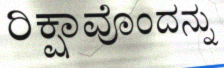
ರಿಕ್ಷಾವೊಂದನ್ನು